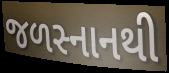
જળસ્નાનથી